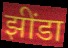
झींडा